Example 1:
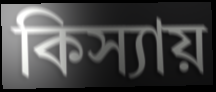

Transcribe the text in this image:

কিস্যায়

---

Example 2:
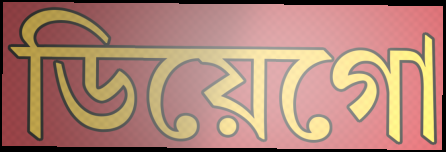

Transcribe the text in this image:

ডিয়েগো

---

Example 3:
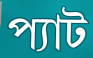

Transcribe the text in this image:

প্যাট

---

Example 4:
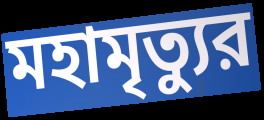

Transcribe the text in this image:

মহামৃত্যুর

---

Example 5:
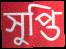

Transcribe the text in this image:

সুপ্তি